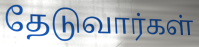
தேடுவார்கள்